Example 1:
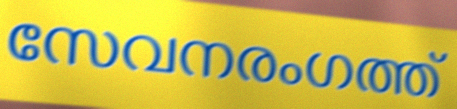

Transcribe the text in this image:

സേവനരംഗത്ത്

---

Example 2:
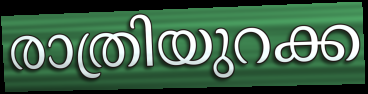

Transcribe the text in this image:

രാത്രിയുറക്ക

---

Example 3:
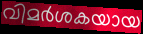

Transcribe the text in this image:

വിമർശകയായ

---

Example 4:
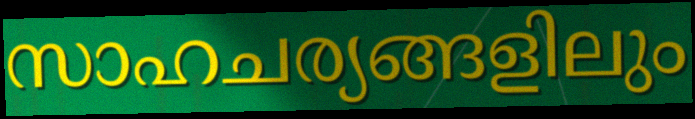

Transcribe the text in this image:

സാഹചര്യങ്ങളിലും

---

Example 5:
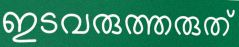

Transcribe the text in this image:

ഇടവരുത്തരുത്